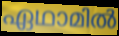
ഏഥാമിൽ